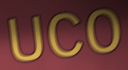
UCO